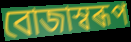
বোজাস্বৰূপ